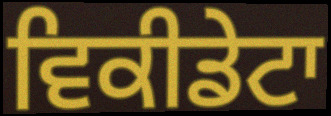
ਵਿਕੀਡੇਟਾ